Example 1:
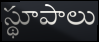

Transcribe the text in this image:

స్థూపాలు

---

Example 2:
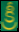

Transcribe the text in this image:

క్రీ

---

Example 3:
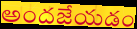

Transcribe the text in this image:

అందజేయడం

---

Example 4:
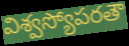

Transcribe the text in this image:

విశ్వస్యోపరతౌ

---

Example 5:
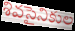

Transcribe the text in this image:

శివసైనికుల